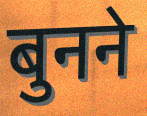
बुनने